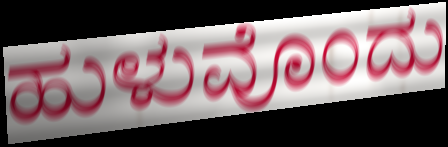
ಹುಳುವೊಂದು